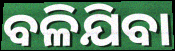
ବଳିଯିବା